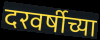
दरवर्षीच्या